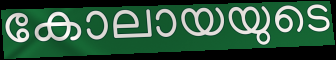
കോലായയുടെ